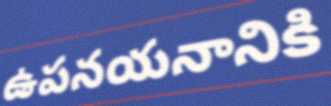
ఉపనయనానికి